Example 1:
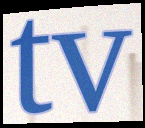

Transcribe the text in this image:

tv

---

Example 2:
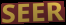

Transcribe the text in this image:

SEER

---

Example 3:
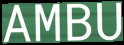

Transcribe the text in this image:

AMBU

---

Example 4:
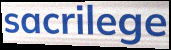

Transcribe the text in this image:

sacrilege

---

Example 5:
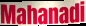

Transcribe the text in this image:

Mahanadi